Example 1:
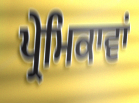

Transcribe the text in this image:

ਪ੍ਰੇਮਿਕਾਵਾਂ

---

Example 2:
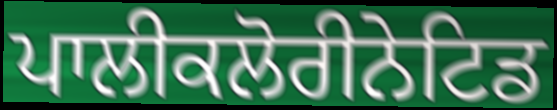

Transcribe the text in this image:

ਪਾਲੀਕਲੋਰੀਨੇਟਿਡ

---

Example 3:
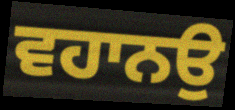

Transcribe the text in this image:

ਵਹਾਨਉ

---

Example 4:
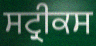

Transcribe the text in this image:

ਸਟ੍ਰੀਕਸ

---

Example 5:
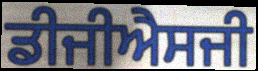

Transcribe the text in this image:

ਡੀਜੀਐਸਜੀ